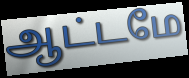
ஆட்டமே